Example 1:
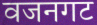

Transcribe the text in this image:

वजनगट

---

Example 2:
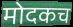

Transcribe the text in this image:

मोदकच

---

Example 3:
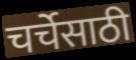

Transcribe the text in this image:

चर्चेसाठी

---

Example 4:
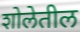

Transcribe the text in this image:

शोलेतील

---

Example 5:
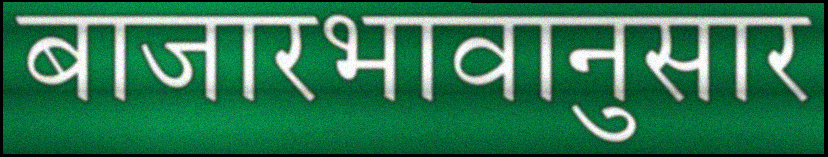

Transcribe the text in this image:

बाजारभावानुसार